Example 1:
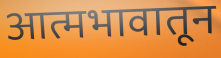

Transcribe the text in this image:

आत्मभावातून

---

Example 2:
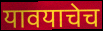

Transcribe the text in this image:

यावयाचेच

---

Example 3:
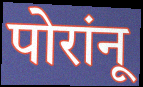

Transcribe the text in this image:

पोरांनू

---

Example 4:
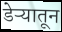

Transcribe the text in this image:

डेऱ्यातून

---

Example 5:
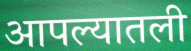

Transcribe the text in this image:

आपल्यातली